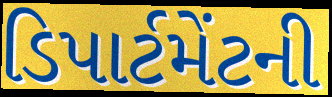
ડિપાર્ટમેંટની